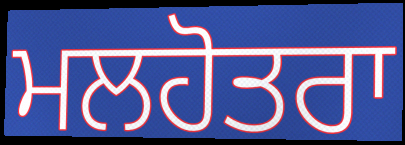
ਮਲਹੋਤਰਾ